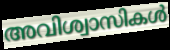
അവിശ്വാസികൾ